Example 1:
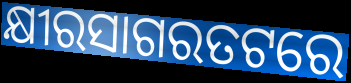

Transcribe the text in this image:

କ୍ଷୀରସାଗରତଟରେ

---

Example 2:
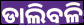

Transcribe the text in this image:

ଡାଲିବଳି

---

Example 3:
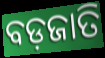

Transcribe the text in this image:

ବଡ଼ଜାତି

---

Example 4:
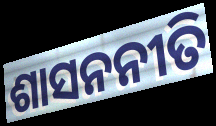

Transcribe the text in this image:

ଶାସନନୀତି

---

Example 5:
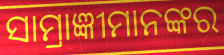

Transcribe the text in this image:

ସାମ୍ରାଜ୍ଞୀମାନଙ୍କର